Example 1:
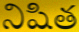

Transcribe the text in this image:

నిషిత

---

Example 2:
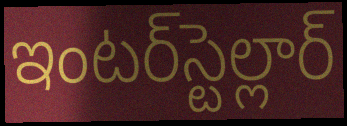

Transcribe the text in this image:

ఇంటర్‌స్టెల్లార్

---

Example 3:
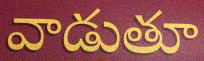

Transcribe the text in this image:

వాడుతూ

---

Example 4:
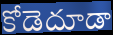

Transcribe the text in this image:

కోడెదూడా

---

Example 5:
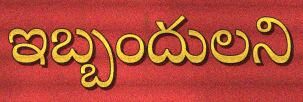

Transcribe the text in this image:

ఇబ్బందులని